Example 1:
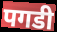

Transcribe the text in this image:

पगडी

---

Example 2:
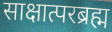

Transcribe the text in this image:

साक्षात्परब्रह्म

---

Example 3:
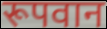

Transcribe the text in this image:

रूपवान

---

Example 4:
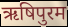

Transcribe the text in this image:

ऋषिपुरम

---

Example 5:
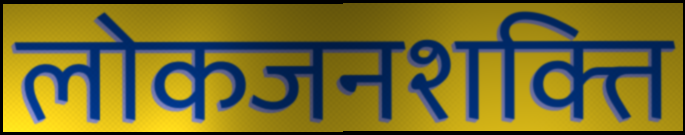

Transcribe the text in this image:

लोकजनशक्ति